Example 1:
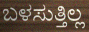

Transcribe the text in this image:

ಬಳಸುತ್ತಿಲ್ಲ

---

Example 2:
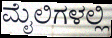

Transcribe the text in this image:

ಮೈಲಿಗಳಲ್ಲಿ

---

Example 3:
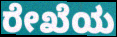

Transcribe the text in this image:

ರೇಖೆಯ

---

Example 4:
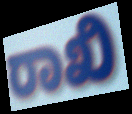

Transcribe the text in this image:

ರಾಖಿ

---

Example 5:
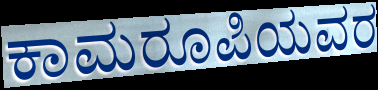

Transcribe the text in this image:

ಕಾಮರೂಪಿಯವರ